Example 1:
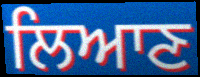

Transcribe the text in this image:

ਲਿਆਣ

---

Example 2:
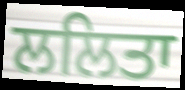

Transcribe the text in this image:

ਲਲਿਤਾ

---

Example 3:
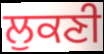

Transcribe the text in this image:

ਲੁਕਣੀ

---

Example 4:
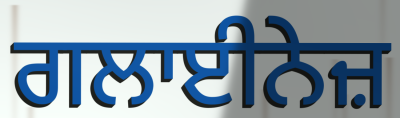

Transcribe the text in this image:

ਗਲਾਈਨੇਜ਼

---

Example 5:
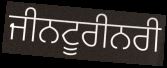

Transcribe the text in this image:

ਜੀਨਟੂਰੀਨਰੀ